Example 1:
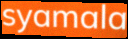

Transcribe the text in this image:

syamala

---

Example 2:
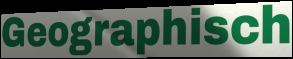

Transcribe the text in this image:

Geographisch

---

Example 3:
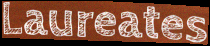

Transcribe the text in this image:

Laureates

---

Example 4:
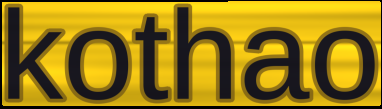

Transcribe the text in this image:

kothao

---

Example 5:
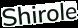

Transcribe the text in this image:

Shirole